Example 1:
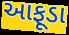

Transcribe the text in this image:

આફૂડા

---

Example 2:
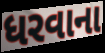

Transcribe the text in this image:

ધરવાના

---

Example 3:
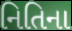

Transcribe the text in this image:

નિતિના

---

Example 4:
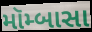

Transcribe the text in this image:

મૉમ્બાસા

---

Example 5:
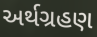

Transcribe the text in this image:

અર્થગ્રહણ